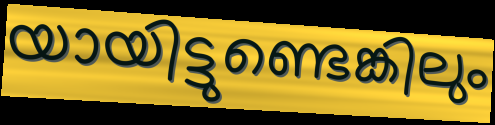
യായിട്ടുണ്ടെങ്കിലും